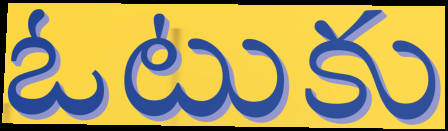
ఓటుకు